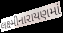
લક્ષ્મીનારાયણમાં